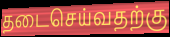
தடைசெய்வதற்கு